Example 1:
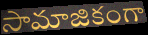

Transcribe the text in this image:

సామాజికంగా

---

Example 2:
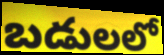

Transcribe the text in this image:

బడులలో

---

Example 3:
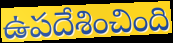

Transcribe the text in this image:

ఉపదేశించింది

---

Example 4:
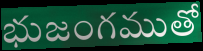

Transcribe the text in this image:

భుజంగముతో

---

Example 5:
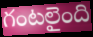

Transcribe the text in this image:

గంటలైంది